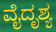
ವೈದೃಶ್ಯ